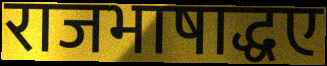
राजभाषाद्धए